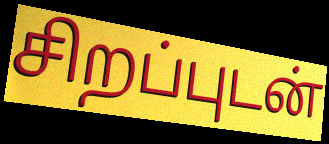
சிறப்புடன்